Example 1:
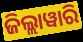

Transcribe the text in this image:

ଜିଲ୍ଲାୱାରି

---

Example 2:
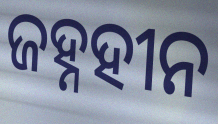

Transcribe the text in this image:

ଜହ୍ନହୀନ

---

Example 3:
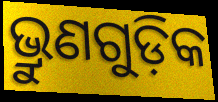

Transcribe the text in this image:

ଭ୍ରୁଣଗୁଡ଼ିକ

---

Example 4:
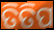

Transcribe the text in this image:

ତିତିପ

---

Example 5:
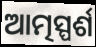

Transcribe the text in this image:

ଆତ୍ମସ୍ପର୍ଶ